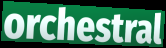
orchestral